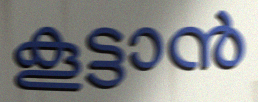
കൂട്ടാൻ